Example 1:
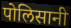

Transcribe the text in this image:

पोलिसानी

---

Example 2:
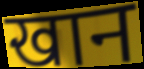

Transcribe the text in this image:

खान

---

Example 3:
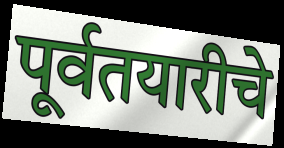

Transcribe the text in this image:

पूर्वतयारीचे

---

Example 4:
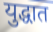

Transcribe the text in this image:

युद्धात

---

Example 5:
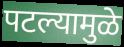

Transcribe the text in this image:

पटल्यामुळे